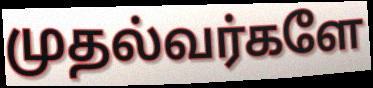
முதல்வர்களே